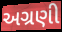
અગ્રણી